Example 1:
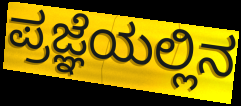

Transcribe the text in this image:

ಪ್ರಜ್ಞೆಯಲ್ಲಿನ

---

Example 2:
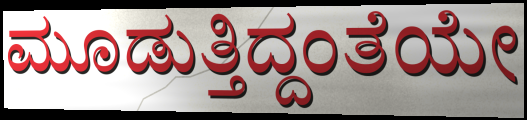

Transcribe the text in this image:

ಮೂಡುತ್ತಿದ್ದಂತೆಯೇ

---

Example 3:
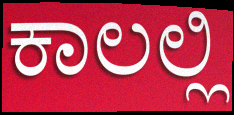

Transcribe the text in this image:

ಕಾಲಲ್ಲಿ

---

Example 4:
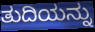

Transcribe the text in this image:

ತುದಿಯನ್ನು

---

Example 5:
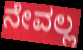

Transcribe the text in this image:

ನೇವಲ್ಲ